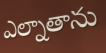
ఎల్నాతాను